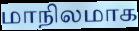
மாநிலமாக